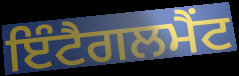
ਇੰਟੈਗਲਮੈਂਟ